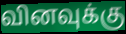
வினவுக்கு